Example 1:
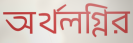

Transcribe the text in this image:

অর্থলগ্নির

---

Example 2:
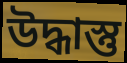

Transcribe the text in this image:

উদ্ধাস্তু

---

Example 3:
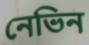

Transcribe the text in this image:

নেভিন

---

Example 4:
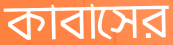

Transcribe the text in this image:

কাবাসের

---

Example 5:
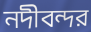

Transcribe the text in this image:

নদীবন্দর